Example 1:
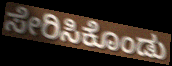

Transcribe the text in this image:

ಸೇರಿಸಿಕೊಂಡು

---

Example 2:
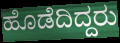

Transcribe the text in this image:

ಹೊಡೆದಿದ್ದರು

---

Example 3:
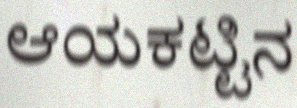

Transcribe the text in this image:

ಆಯಕಟ್ಟಿನ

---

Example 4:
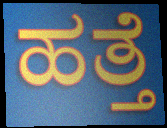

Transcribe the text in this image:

ಹತ್ತೆ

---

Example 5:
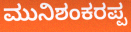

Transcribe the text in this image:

ಮುನಿಶಂಕರಪ್ಪ